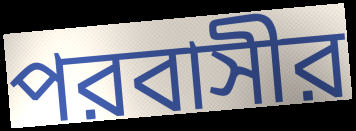
পরবাসীর